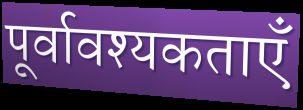
पूर्वावश्यकताएँ